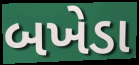
બખેડા